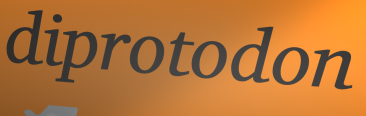
diprotodon